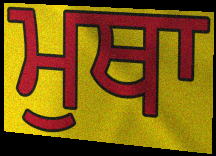
ਮੁਥਾ